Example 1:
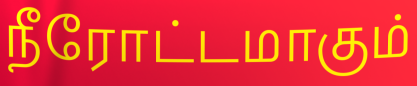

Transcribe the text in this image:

நீரோட்டமாகும்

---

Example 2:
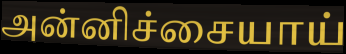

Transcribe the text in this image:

அன்னிச்சையாய்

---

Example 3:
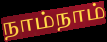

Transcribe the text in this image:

நாம்நாம்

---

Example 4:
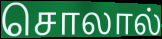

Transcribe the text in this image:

சொலால்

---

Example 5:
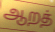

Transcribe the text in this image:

ஆறத்